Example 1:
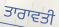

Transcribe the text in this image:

ਤਾਰਾਵਤੀ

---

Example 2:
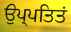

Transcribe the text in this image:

ਉਪ੍ਪਤਿਤਂ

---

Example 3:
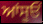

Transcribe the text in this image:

ਆਂਸੂਓਂ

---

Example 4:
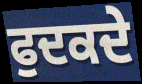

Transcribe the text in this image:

ਫੁਦਕਦੇ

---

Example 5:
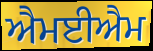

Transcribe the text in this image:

ਐਮਈਐਮ